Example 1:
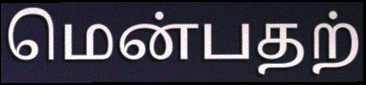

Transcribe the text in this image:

மென்பதற்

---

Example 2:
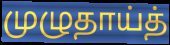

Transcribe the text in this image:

முழுதாய்த்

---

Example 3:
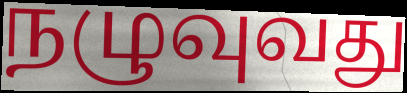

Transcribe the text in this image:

நழுவுவது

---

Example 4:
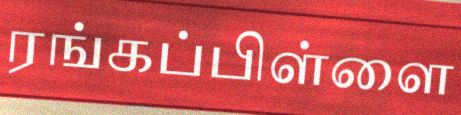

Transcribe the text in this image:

ரங்கப்பிள்ளை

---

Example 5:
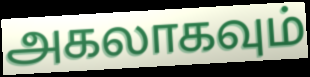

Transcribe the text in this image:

அகலாகவும்